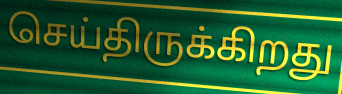
செய்திருக்கிறது